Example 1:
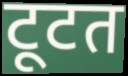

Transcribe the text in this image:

टूटत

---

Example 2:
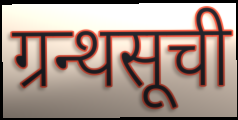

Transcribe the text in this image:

ग्रन्थसूची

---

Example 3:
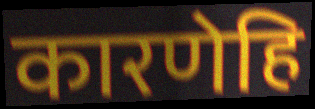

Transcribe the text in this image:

कारणेहि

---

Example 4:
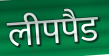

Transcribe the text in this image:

लीपपैड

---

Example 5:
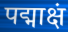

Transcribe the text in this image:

पद्माक्षं